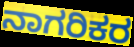
ನಾಗರಿಕರ